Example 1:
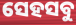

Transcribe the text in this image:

ସେହସବୁ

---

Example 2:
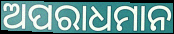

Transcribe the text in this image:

ଅପରାଧମାନ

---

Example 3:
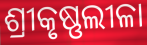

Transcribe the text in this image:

ଶ୍ରୀକୃଷ୍ଣଲୀଳା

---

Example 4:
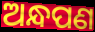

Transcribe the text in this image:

ଅନ୍ଧପଣ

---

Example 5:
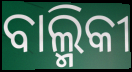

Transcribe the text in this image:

ବାଲ୍ମିକୀ